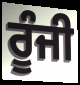
ਰੂੰਜੀ